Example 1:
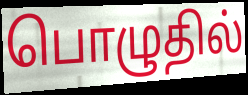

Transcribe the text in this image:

பொழுதில்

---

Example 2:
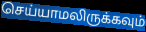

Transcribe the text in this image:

செய்யாமலிருக்கவும்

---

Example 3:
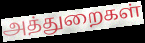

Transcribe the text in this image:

அத்துறைகள்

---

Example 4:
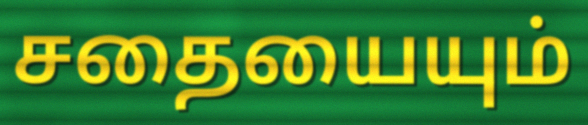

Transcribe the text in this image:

சதையையும்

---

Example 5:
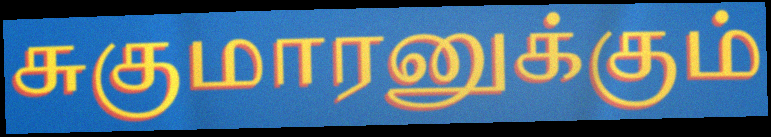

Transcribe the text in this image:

சுகுமாரனுக்கும்